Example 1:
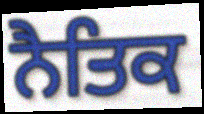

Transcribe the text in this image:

ਨੈਤਿਕ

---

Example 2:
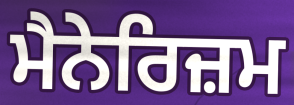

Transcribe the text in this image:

ਮੈਨੇਰਿਜ਼ਮ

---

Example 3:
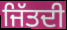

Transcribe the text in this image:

ਜਿੱਤਦੀ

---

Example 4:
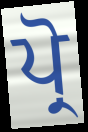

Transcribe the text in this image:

ਪ੍ਰੋ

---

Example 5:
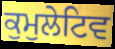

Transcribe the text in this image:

ਕੁਮੁਲੇਟਿਵ